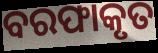
ବରଫାକୃତ